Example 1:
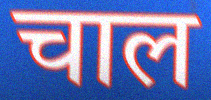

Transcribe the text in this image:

चाल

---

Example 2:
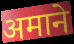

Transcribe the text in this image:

अमाने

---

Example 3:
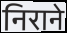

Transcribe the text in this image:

निराने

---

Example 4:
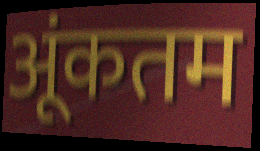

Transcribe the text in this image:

अूंकतम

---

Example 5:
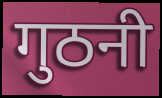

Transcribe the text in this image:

गुठनी